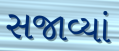
સજાવ્યાં